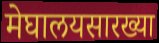
मेघालयसारख्या